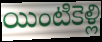
యింటికెళ్లి